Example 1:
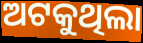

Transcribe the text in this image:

ଅଟକୁଥିଲା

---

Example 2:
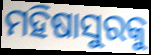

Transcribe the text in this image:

ମହିଷାସୁରକୁ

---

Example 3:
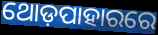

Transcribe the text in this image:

ଥୋଡ଼ପାହାରରେ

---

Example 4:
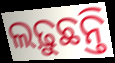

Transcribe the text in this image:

ଲଢ଼ୁଛନ୍ତି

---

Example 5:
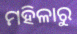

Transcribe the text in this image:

ମହିଳାରୁ